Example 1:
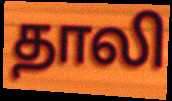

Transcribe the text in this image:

தாலி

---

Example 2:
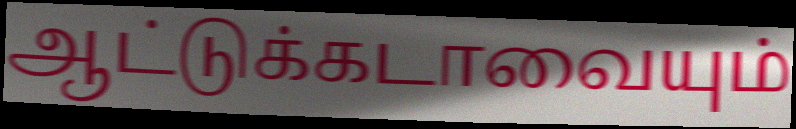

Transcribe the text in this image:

ஆட்டுக்கடாவையும்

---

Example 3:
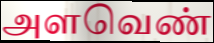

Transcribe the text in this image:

அளவெண்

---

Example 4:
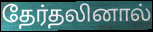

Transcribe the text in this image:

தேர்தலினால்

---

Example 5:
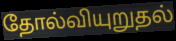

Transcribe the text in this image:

தோல்வியுறுதல்